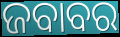
ଜବାବର